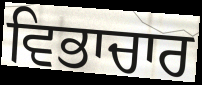
ਵਿਭਾਚਾਰ